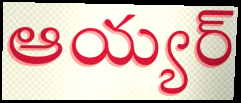
ఆయ్యర్